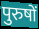
पुरुषों